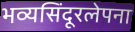
भव्यसिंदूरलेपना